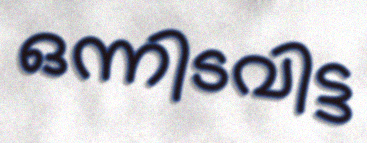
ഒന്നിടവിട്ട